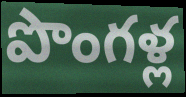
పొంగళ్ల